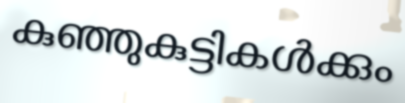
കുഞ്ഞുകുട്ടികൾക്കും